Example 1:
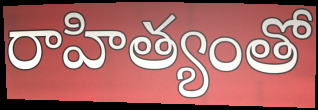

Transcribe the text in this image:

రాహిత్యంతో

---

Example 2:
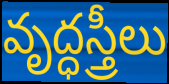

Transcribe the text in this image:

వృద్ధస్త్రీలు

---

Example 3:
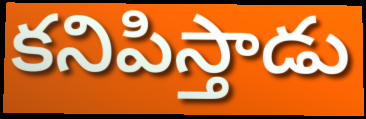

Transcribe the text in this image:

కనిపిస్తాడు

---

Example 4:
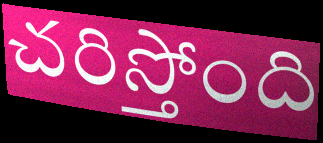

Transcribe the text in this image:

చరిస్తోంది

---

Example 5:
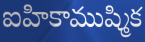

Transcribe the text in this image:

ఐహికాముష్మిక